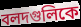
বলদগুলিকে